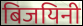
बिजयिनी